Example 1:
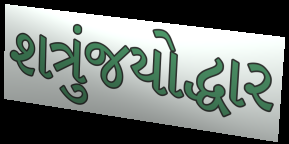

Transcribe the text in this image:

શત્રુંજયોદ્ધાર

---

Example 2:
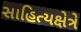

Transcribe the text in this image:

સાહિત્યક્ષેત્રે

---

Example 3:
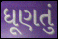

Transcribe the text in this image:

ધૂણતું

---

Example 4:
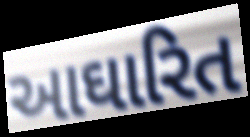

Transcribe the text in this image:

આઘારિત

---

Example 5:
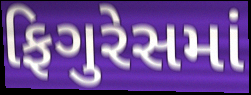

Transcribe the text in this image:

ફિગુરેસમાં